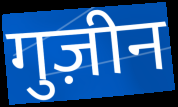
गुज़ीन